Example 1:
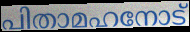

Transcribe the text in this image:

പിതാമഹനോട്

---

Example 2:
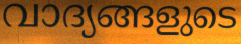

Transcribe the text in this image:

വാദ്യങ്ങളുടെ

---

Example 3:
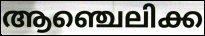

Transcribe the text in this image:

ആഞ്ചെലിക്ക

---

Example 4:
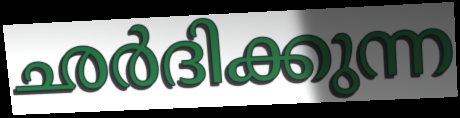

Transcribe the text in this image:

ഛർദിക്കുന്ന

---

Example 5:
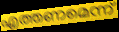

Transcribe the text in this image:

എത്തണമെന്ന്